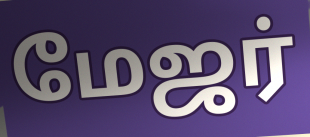
மேஜர்